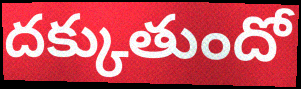
దక్కుతుందో